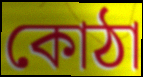
কোঠা